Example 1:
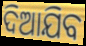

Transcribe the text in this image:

ଦିଆଯିବ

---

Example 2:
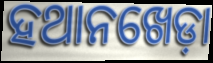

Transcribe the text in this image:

ହଥାନଖେଡ଼ା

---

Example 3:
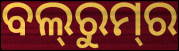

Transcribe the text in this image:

ବଲ୍‍ରୁମ୍‌ର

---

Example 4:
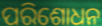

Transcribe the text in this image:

ପରିଶୋଧନ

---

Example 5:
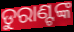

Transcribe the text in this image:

ଡୁରାଣ୍ଟଙ୍କ